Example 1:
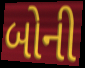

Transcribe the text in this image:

બોની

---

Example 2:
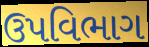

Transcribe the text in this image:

ઉપવિભાગ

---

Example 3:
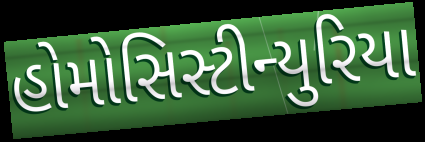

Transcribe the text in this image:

હોમોસિસ્ટીન્યુરિયા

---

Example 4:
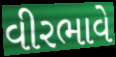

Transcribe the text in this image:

વીરભાવે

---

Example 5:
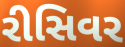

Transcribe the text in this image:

રીસિવર